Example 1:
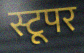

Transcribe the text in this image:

स्टूपर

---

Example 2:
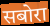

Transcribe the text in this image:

सबोरा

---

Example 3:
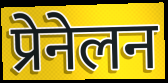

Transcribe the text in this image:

प्रेनेलन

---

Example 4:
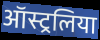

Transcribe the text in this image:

ऑस्ट्रलिया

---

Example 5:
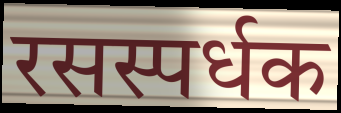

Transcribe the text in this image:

रसस्पर्धक